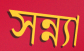
সন্ন্যা